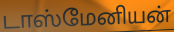
டாஸ்மேனியன்